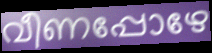
വീണപ്പോഴേ